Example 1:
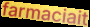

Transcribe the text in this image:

farmaciait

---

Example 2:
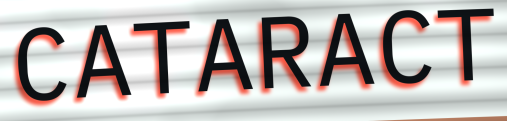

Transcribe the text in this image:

CATARACT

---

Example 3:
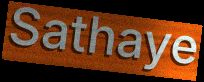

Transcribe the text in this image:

Sathaye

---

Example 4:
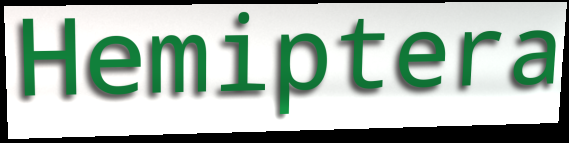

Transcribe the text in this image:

Hemiptera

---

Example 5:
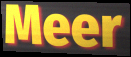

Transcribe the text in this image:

Meer